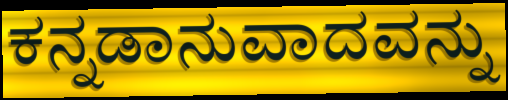
ಕನ್ನಡಾನುವಾದವನ್ನು